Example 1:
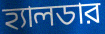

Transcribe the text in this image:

হ্যালডার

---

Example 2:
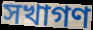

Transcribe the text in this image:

সখাগণ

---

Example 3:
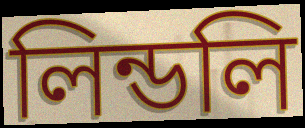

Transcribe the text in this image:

লিন্ডলি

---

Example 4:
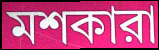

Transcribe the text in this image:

মশকারা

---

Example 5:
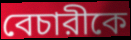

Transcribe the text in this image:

বেচারীকে